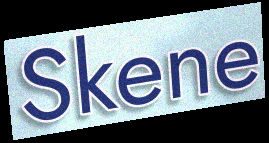
Skene